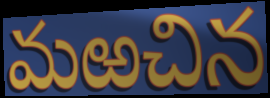
మఱచిన